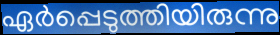
ഏർപ്പെടുത്തിയിരുന്നു